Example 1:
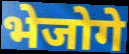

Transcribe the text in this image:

भेजोगे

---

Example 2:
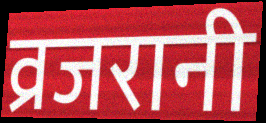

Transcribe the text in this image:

व्रजरानी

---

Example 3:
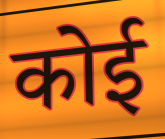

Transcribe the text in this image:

कोई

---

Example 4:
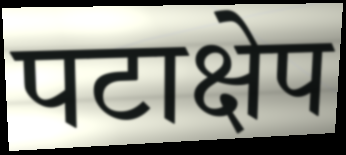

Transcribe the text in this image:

पटाक्षेप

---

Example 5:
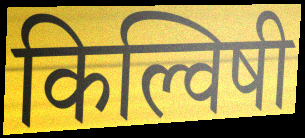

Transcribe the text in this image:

किल्विषी